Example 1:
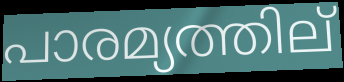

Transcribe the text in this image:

പാരമ്യത്തില്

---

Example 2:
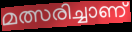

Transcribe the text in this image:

മത്സരിച്ചാണ്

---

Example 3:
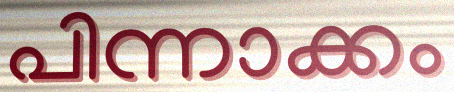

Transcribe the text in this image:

പിന്നാക്കം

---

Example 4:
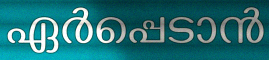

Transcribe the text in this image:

ഏർപ്പെടാൻ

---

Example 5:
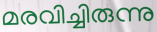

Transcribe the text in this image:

മരവിച്ചിരുന്നു